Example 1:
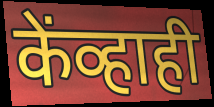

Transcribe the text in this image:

केंव्हाही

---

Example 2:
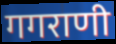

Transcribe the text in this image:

गगराणी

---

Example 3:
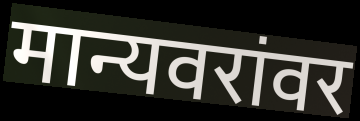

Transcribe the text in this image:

मान्यवरांवर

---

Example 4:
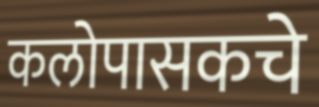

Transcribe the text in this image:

कलोपासकचे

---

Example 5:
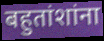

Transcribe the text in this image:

बहुतांशांना